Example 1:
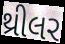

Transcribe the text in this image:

થ્રીલર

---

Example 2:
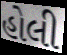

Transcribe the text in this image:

હોલી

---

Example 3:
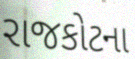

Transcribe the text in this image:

રાજકોટના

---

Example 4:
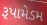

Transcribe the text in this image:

રૂપામેડમ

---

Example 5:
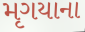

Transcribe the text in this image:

મૃગયાના